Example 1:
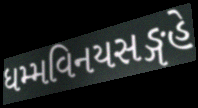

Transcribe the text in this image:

ધમ્મવિનયસઙ્ગહે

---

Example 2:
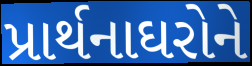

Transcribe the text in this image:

પ્રાર્થનાઘરોને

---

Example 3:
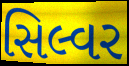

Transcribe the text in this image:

સિલ્વર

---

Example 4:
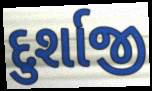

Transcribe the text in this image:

દુર્શાજી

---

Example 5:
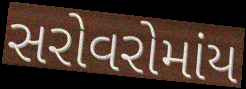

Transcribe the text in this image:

સરોવરોમાંય